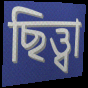
ছিত্ত্বা